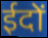
ईदों